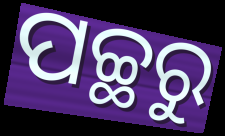
ପଚ୍ଛରୁ